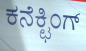
ಕನೆಕ್ಟಿಂಗ್